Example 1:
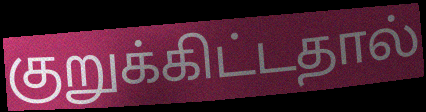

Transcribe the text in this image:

குறுக்கிட்டதால்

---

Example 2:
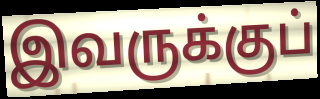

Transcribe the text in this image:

இவருக்குப்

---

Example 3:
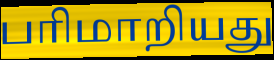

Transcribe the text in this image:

பரிமாறியது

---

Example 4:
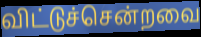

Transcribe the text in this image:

விட்டுச்சென்றவை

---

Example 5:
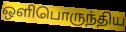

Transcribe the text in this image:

ஒளிபொருந்திய